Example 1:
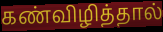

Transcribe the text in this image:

கண்விழித்தால்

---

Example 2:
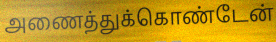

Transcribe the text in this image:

அணைத்துக்கொண்டேன்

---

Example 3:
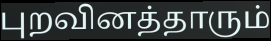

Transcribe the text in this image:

புறவினத்தாரும்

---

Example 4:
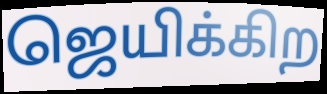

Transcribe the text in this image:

ஜெயிக்கிற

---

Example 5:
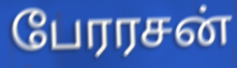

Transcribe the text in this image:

பேரரசன்